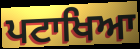
ਪਟਾਖਿਆ